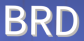
BRD